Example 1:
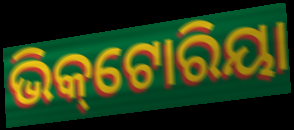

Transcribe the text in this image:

ଭିକ୍‌ଟୋରିୟା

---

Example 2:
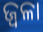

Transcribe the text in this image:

ଜ୍ୱଳା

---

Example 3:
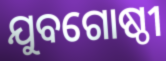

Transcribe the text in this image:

ଯୁବଗୋଷ୍ଠୀ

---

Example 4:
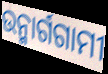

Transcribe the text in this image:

ଉନ୍ମାର୍ଗଗାମୀ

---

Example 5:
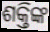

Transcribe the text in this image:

ଶକ୍ତିଙ୍କ